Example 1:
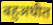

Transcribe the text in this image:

बहुअधीत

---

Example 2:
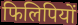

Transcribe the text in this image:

फिलिपियों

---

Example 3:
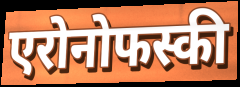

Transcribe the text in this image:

एरोनोफस्की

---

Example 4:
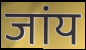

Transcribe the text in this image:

जांय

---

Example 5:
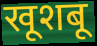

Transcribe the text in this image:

खूशबू